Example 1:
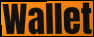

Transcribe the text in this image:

Wallet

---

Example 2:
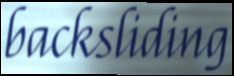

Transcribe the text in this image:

backsliding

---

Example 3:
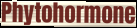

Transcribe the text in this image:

Phytohormone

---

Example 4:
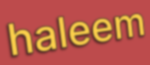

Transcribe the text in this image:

haleem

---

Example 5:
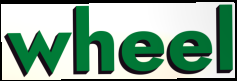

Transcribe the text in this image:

wheel